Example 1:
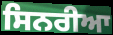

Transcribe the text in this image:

ਸਿਨਰੀਆ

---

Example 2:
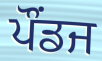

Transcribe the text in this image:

ਪੌਂਡਜ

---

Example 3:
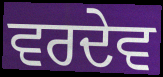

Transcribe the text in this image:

ਵਰਦੇਵ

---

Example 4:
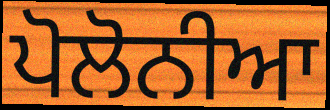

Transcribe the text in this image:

ਪੋਲੋਨੀਆ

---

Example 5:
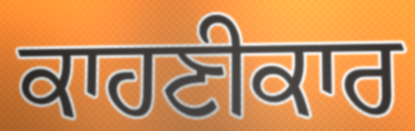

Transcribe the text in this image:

ਕਾਹਣੀਕਾਰ